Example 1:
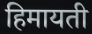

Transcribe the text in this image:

हिमायती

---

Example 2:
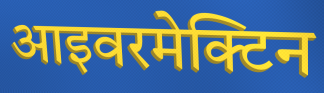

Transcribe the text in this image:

आइवरमेक्टिन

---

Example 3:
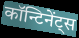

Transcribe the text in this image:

कॉन्टिनेंट्स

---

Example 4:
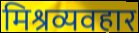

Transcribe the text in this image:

मिश्रव्यवहार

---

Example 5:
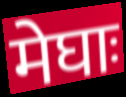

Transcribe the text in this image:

मेघाः